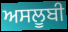
ਅਸਲੂਬੀ